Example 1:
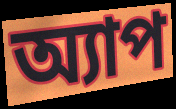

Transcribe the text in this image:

অ্যাপ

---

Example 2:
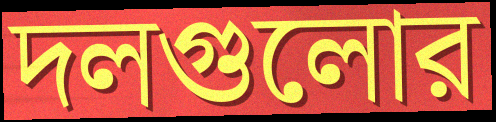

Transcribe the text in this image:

দলগুলোর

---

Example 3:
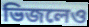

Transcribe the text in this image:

ভিজলেও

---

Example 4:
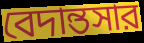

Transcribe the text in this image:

বেদান্তসার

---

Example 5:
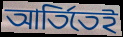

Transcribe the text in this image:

আর্তিতেই